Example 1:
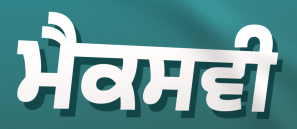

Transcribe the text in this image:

ਮੈਕਸਵੀ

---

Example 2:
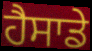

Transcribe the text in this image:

ਹੈਸਾਡੇ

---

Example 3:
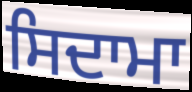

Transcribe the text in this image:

ਸਿਦਾਮਾ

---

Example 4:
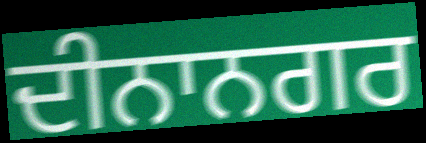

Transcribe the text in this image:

ਦੀਨਾਨਗਰ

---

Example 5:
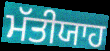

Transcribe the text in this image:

ਮੱਤੀਯਾਹ